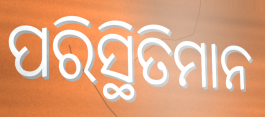
ପରିସ୍ଥିତିମାନ